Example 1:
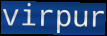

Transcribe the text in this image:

virpur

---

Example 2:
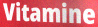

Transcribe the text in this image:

Vitamine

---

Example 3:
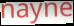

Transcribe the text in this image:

nayne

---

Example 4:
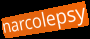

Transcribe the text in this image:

narcolepsy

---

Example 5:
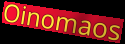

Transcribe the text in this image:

Oinomaos